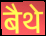
बैथे